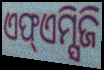
ଏଫ୍ଏମ୍ସିଜି